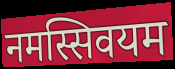
नमस्सिवयम